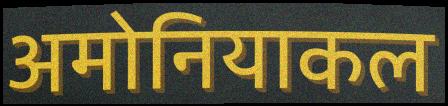
अमोनियाकल